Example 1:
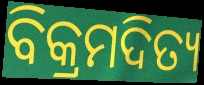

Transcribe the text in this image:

ବିକ୍ରମଦିତ୍ୟ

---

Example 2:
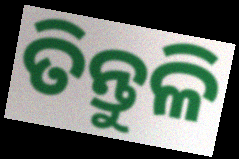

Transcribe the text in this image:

ତିନ୍ତୁଳି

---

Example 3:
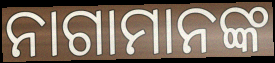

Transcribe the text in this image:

ନାଗାମାନଙ୍କ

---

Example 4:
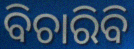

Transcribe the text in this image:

ବିଚାରିବି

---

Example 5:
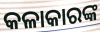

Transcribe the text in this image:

କଳାକାରଙ୍କ